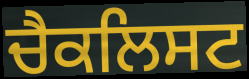
ਚੈਕਲਿਸਟ